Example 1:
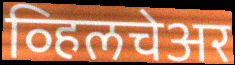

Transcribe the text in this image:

व्हिलचेअर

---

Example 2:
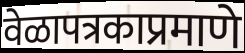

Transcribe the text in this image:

वेळापत्रकाप्रमाणे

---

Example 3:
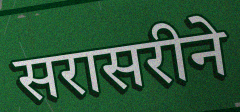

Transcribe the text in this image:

सरासरीने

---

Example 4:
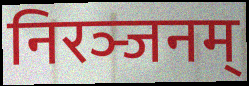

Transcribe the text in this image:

निरञ्जनम्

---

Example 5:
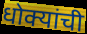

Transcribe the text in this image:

धोक्यांची